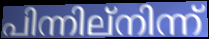
പിന്നില്നിന്ന്